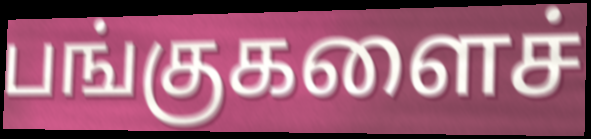
பங்குகளைச்